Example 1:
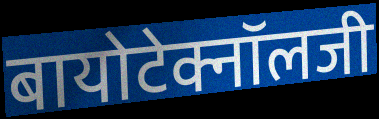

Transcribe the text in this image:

बायोटेक्नॉलजी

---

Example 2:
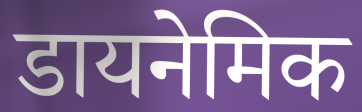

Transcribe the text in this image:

डायनेमिक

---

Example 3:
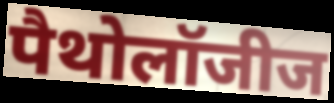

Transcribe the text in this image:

पैथोलॉजीज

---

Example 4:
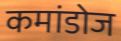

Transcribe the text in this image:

कमांडोज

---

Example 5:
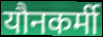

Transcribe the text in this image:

यौनकर्मी